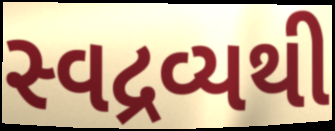
સ્વદ્રવ્યથી